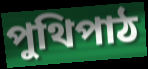
পুথিপাঠ